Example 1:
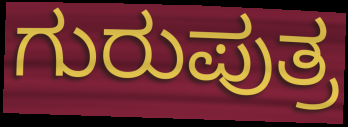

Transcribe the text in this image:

ಗುರುಪುತ್ರ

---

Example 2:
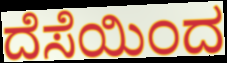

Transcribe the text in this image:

ದೆಸೆಯಿಂದ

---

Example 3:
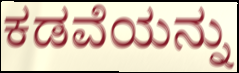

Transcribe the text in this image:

ಕಡವೆಯನ್ನು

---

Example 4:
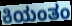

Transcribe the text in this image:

ಕಿಯಂತಂ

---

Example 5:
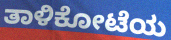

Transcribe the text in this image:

ತಾಳಿಕೋಟೆಯ